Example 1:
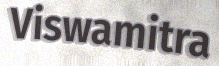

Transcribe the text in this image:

Viswamitra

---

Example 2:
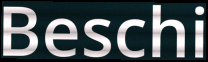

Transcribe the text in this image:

Beschi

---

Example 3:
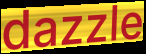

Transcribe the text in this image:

dazzle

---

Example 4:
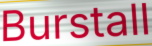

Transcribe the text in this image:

Burstall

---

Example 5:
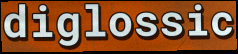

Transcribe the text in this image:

diglossic